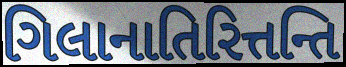
ગિલાનાતિરિત્તન્તિ